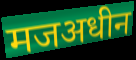
मजअधीन